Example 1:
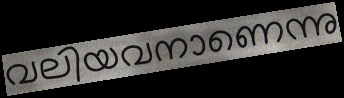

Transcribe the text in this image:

വലിയവനാണെന്നു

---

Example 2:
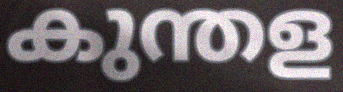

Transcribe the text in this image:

കുന്തള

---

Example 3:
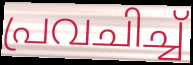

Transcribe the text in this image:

പ്രവചിച്ച്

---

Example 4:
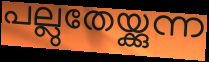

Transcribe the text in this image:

പല്ലുതേയ്ക്കുന്ന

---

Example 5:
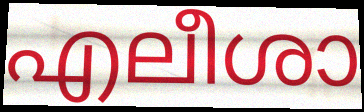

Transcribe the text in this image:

എലീശാ